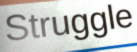
Struggle